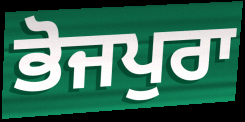
ਭੋਜਪੁਰਾ